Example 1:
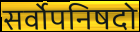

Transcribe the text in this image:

सर्वोपनिषदो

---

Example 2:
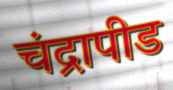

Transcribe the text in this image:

चंद्रापीड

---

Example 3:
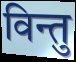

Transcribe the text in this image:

विन्तु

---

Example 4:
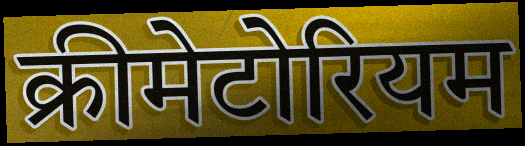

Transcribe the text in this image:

क्रीमेटोरियम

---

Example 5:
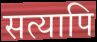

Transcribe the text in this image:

सत्यापि